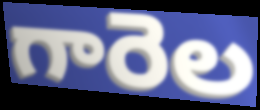
గారెల